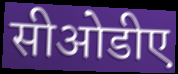
सीओडीए